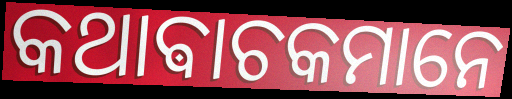
କଥାଵାଚକମାନେ